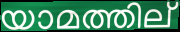
യാമത്തില്